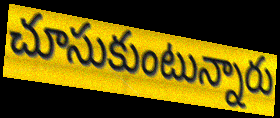
చూసుకుంటున్నారు